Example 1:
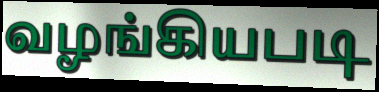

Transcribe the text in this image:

வழங்கியபடி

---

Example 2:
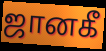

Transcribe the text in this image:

ஜானகீ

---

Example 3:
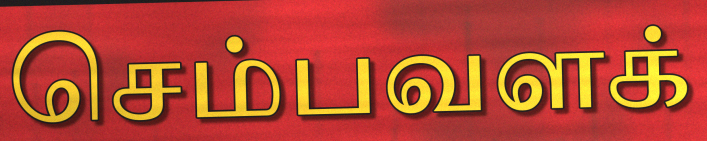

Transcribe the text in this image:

செம்பவளக்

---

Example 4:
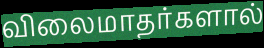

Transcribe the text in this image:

விலைமாதர்களால்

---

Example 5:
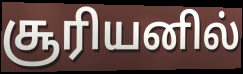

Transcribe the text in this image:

சூரியனில்